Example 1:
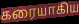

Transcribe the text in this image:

கரையாகிய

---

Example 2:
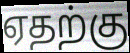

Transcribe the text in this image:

ஏதற்கு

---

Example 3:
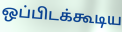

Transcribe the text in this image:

ஒப்பிடக்கூடிய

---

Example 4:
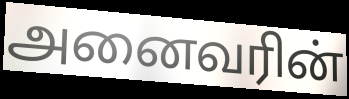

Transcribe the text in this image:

அனைவரின்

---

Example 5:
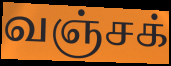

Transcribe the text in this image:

வஞ்சக்